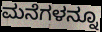
ಮನೆಗಳನ್ನೂ